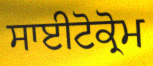
ਸਾਈਟੋਕ੍ਰੋਮ